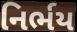
નિર્ભય